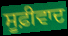
ਸੂਫ਼ੀਵਾਦ